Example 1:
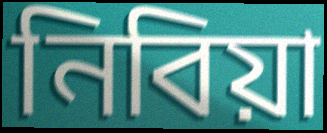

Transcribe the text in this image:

নিবিয়া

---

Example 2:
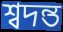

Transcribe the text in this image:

শ্বদন্ত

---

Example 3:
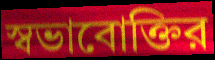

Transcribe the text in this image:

স্বভাবোক্তির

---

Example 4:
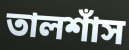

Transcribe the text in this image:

তালশাঁস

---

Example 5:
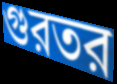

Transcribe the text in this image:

গুরতর